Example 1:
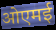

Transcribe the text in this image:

ओएमई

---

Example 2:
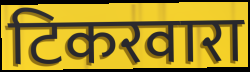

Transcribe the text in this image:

टिकरवारा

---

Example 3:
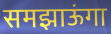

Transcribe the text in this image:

समझाऊंगा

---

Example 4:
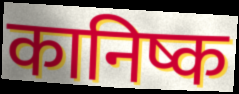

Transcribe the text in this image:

कानिष्क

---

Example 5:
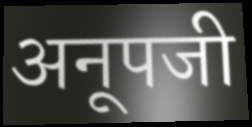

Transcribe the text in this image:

अनूपजी